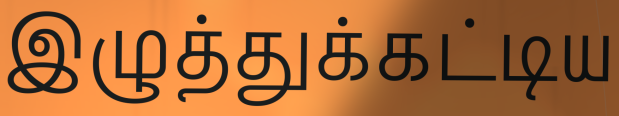
இழுத்துக்கட்டிய